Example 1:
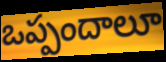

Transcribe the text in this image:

ఒప్పందాలూ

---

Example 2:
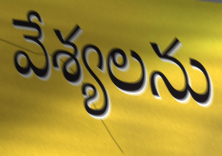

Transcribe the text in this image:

వేశ్యలను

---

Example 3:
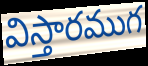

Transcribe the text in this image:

విస్తారముగ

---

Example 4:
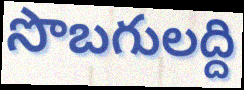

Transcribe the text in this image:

సొబగులద్ది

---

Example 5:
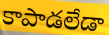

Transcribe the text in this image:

కాపాడలేడా